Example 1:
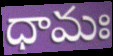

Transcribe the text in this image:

ధామః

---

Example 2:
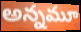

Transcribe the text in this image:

అన్నమూ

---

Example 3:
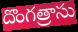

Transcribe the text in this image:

దొంగత్రాసు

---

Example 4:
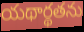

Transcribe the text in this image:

యథార్థతను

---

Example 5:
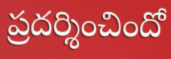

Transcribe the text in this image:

ప్రదర్శించిందో